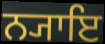
ਨ੍ਯਾਇ